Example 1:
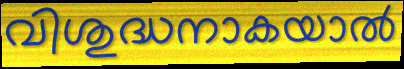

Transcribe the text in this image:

വിശുദ്ധനാകയാൽ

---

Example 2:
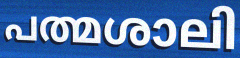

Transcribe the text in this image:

പത്മശാലി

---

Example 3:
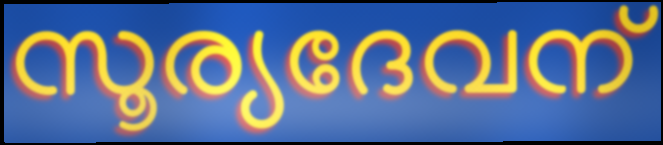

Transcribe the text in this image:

സൂര്യദേവന്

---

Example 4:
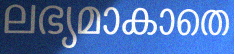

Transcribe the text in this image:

ലഭ്യമാകാതെ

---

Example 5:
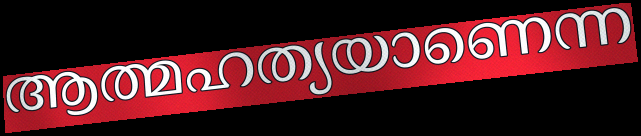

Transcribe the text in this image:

ആത്മഹത്യയാണെന്ന